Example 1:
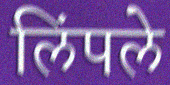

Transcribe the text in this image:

लिंपले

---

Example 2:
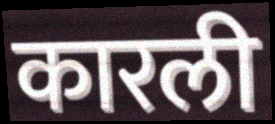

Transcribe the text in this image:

कारली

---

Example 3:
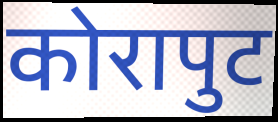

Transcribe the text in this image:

कोरापुट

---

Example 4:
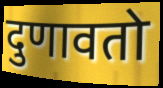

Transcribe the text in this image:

दुणावतो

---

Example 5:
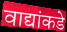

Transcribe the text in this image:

वाद्यांकडे